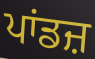
ਪਾਂਡਜ਼